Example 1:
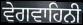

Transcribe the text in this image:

ਵੇਗਵਾਹਿਨੀ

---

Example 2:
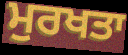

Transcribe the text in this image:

ਮੁਰਖਤਾ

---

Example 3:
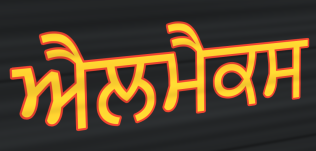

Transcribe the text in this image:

ਐਲਮੈਕਸ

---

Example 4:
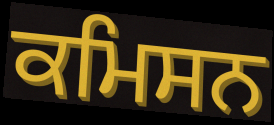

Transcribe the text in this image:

ਕਮਿਸਨ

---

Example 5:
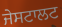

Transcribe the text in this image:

ਜੇਸਟਾਲਟ